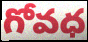
గోవధ